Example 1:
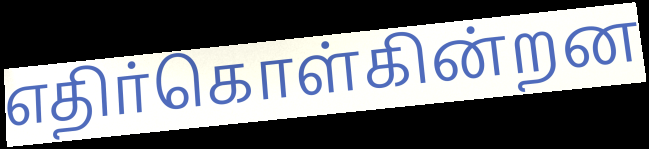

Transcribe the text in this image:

எதிர்கொள்கின்றன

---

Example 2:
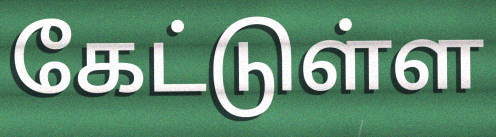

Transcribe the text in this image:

கேட்டுள்ள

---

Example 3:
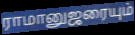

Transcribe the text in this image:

ராமானுஜரையும்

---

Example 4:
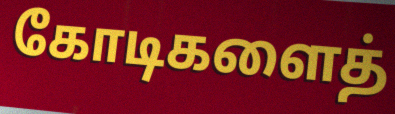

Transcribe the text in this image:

கோடிகளைத்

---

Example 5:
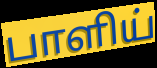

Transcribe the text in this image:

பாளிய்